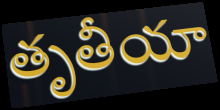
తృతీయా